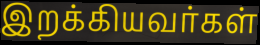
இறக்கியவர்கள்